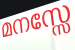
മനസ്സേ